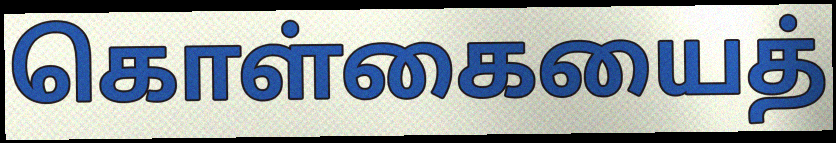
கொள்கையைத்